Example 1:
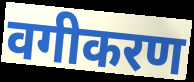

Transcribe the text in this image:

वगीकरण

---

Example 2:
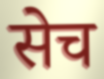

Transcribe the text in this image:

सेच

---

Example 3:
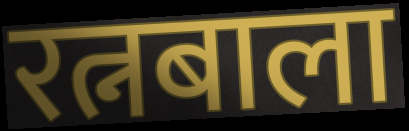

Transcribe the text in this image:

रत्नबाला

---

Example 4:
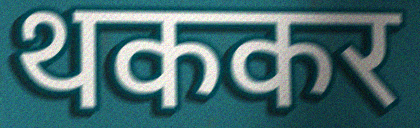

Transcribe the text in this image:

थककर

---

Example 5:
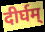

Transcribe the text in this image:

दीर्घम्